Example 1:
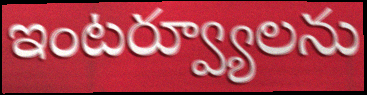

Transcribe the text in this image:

ఇంటర్వ్యూలను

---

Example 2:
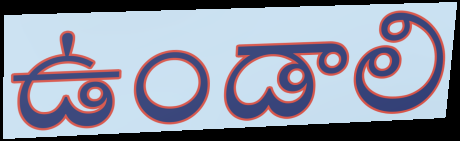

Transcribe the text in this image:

ఉండాలి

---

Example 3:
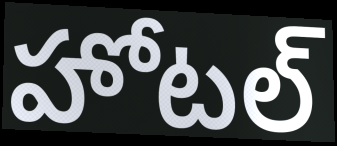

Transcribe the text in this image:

హోటల్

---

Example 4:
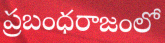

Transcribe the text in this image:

ప్రబంధరాజంలో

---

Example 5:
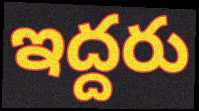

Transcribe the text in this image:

ఇద్దరు